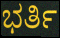
ಭರ್ತಿ